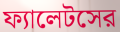
ফ্যালেটসের